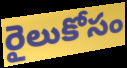
రైలుకోసం